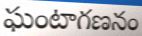
ఘంటాగణనం